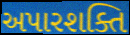
અપારશક્તિ